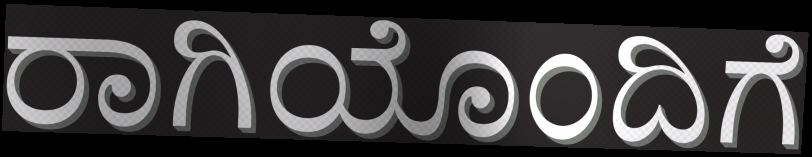
ರಾಗಿಯೊಂದಿಗೆ